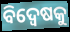
ବିଦ୍ବେଷକୁ